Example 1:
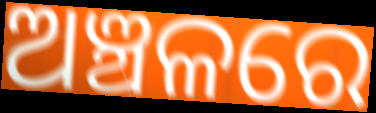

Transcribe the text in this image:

ଅଞ୍ଚଳରେ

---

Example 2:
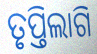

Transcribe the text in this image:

ତୃପ୍ତିଲାଗି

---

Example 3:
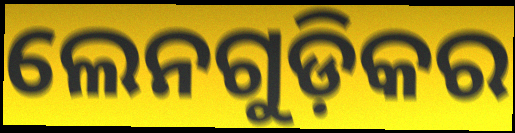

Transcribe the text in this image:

ଲେନଗୁଡ଼ିକର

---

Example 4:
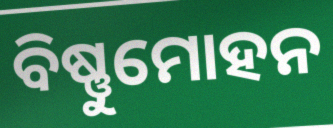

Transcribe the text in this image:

ବିଷ୍ଣୁମୋହନ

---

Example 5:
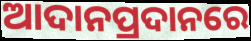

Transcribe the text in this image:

ଆଦାନପ୍ରଦାନରେ